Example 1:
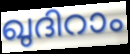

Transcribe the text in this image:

ഖുദിറാം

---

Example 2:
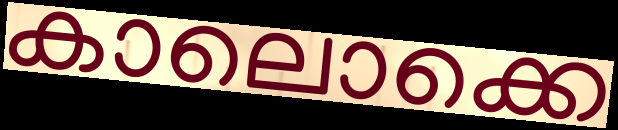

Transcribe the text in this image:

കാലൊക്കെ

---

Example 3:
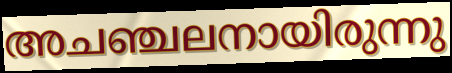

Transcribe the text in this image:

അചഞ്ചലനായിരുന്നു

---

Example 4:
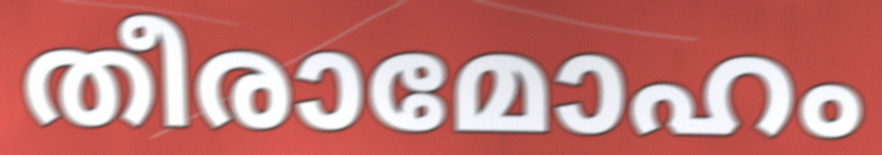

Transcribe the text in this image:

തീരാമോഹം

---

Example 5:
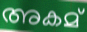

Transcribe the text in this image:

അകമ്